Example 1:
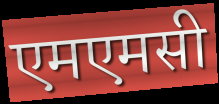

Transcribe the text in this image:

एमएमसी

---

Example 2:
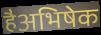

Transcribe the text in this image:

हैअभिषेक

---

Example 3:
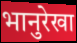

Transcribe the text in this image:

भानुरेखा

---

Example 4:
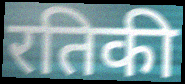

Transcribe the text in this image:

रतिकी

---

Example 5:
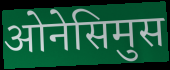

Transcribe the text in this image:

ओनेसिमुस